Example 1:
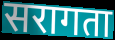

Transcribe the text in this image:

सरागता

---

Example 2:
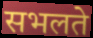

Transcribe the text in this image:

सभलते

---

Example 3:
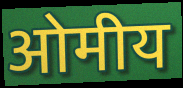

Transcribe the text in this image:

ओमीय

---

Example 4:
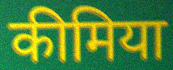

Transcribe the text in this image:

कीमिया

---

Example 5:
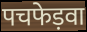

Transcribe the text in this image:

पचफेड़वा